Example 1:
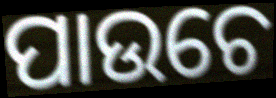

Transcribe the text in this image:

ପାଉଚେ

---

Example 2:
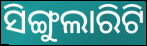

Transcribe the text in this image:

ସିଙ୍ଗୁଲାରିଟି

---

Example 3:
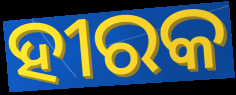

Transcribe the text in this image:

ହୀରକ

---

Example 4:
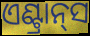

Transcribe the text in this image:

ଏଣ୍ଟ୍ରାନ୍‍ସ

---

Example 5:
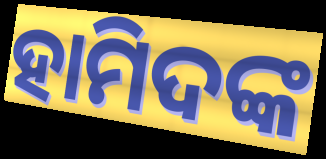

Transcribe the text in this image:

ହାମିଦଙ୍କ